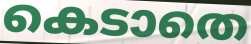
കെടാതെ